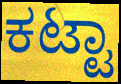
ಕಟ್ಟಾ